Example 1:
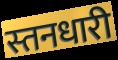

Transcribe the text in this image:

स्‍तनधारी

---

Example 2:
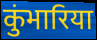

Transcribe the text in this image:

कुंभारिया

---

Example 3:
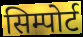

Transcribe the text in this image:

सिम्पोर्ट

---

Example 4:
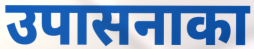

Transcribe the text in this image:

उपासनाका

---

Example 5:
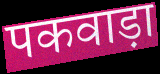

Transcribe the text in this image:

पकवाड़ा